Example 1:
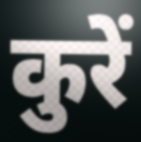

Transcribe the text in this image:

कुरें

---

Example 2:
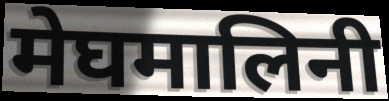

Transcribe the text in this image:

मेघमालिनी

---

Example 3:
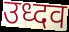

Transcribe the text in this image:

उध्दव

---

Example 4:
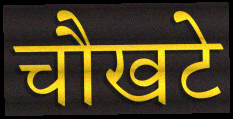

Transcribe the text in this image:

चौखटे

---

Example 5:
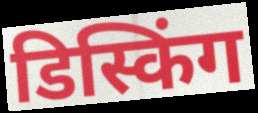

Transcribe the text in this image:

डिस्किंग